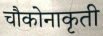
चौकोनाकृती